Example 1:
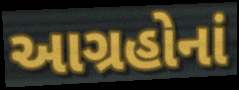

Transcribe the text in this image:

આગ્રહોનાં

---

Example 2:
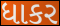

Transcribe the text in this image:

ધાકર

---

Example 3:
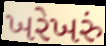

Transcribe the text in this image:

ખરેખરું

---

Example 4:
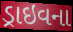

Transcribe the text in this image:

ડ્રાઇવના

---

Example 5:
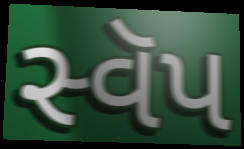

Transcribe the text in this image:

સ્વૅપ